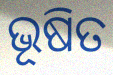
ଭୂଷିତ